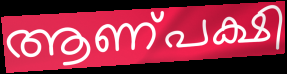
ആണ്പക്ഷി